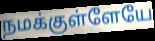
நமக்குள்ளேயே